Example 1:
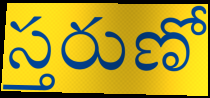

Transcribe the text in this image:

స్తరుణో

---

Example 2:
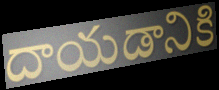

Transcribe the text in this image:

దాయడానికి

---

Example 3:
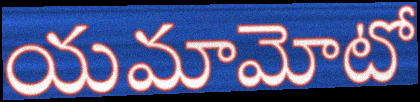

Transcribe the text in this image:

యమామోటో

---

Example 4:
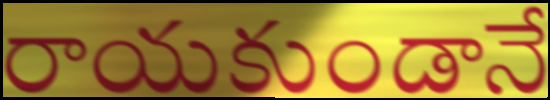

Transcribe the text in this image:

రాయకుండానే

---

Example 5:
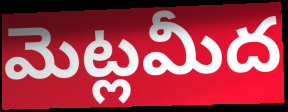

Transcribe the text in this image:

మెట్లమీద